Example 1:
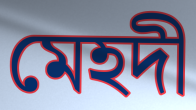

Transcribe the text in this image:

মেহদী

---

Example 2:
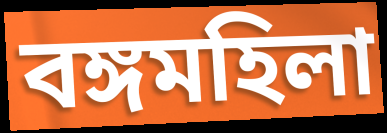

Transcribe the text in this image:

বঙ্গমহিলা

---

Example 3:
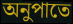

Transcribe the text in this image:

অনুপাতে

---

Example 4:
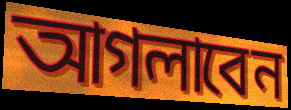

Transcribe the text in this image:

আগলাবেন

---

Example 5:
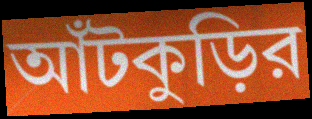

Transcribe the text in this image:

আঁটকুড়ির